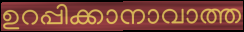
ഉറപ്പിക്കാനാവാത്ത